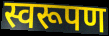
स्वरूपण